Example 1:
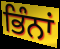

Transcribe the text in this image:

ਭਿੰਨਾਂ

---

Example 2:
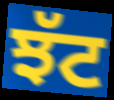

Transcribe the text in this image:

ਝੱਟ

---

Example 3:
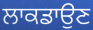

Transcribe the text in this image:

ਲਾਕਡਾਉਣ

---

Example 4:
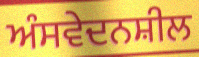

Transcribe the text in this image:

ਅੰਸਵੇਦਨਸ਼ੀਲ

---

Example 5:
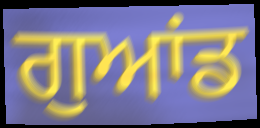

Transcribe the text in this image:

ਗੁਆਂਡ